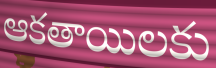
ఆకతాయిలకు